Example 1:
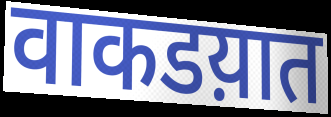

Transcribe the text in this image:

वाकडय़ात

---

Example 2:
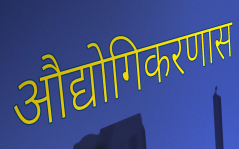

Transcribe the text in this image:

औद्योगिकरणास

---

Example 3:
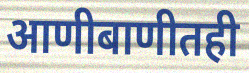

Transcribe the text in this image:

आणीबाणीतही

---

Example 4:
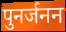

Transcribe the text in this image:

पुनर्जनन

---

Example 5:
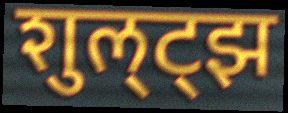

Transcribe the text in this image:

शुल्ट्झ